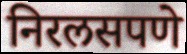
निरलसपणे